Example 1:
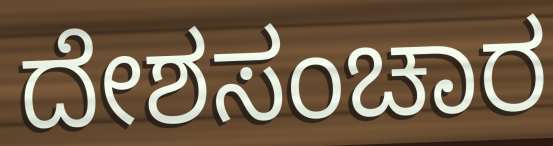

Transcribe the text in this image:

ದೇಶಸಂಚಾರ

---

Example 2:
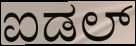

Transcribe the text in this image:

ಐಡಲ್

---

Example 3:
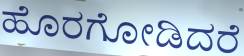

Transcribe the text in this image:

ಹೊರಗೋಡಿದರೆ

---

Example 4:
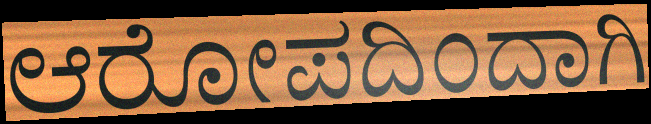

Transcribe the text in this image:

ಆರೋಪದಿಂದಾಗಿ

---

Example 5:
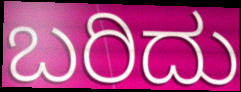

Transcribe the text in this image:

ಬರಿದು